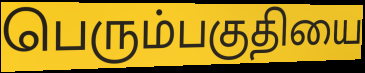
பெரும்பகுதியை